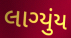
લાગ્યુંય